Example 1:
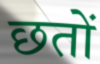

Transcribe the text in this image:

छतों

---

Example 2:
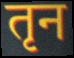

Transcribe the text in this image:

तृन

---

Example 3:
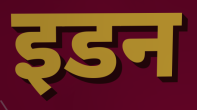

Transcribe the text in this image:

इडन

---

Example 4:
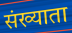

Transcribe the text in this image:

संख्याता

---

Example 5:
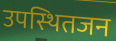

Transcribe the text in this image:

उपस्थितजन